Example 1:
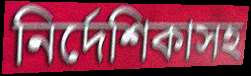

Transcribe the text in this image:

নির্দেশিকাসহ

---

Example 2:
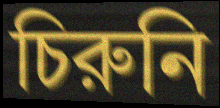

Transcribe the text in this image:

চিরুনি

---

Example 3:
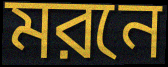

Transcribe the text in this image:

মরনে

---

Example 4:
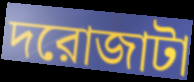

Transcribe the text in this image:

দরোজাটা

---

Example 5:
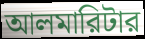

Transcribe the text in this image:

আলমারিটার